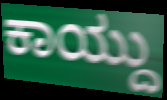
ಕಾಯ್ದು